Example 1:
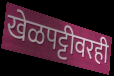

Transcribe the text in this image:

खेळपट्टीवरही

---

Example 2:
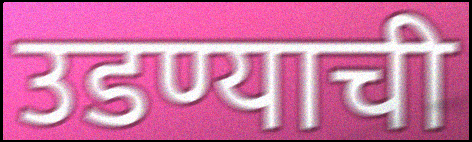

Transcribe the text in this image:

उडण्याची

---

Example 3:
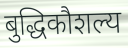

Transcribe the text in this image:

बुद्धिकौशल्य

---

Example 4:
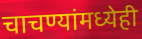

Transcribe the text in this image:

चाचण्यांमध्येही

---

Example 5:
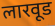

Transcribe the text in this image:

लारवूड